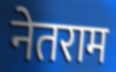
नेतराम